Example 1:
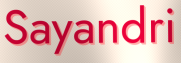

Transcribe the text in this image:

Sayandri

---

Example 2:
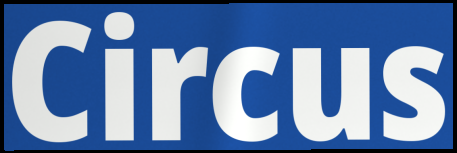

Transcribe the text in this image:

Circus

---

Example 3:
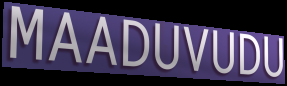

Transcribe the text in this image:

MAADUVUDU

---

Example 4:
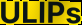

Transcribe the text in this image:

ULIPs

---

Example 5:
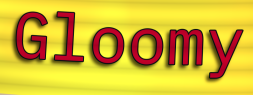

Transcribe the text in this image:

Gloomy